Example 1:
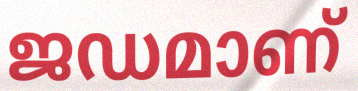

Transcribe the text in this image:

ജഡമാണ്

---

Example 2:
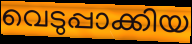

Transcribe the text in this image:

വെടുപ്പാക്കിയ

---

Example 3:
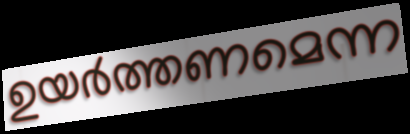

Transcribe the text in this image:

ഉയർത്തണമെന്ന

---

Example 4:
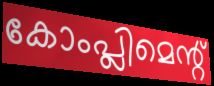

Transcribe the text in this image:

കോംപ്ലിമെന്റ്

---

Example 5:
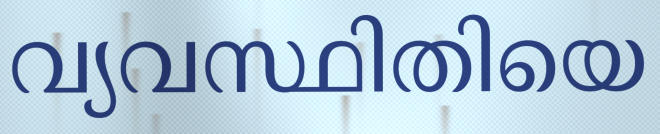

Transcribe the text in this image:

വ്യവസ്ഥിതിയെ